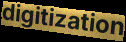
digitization